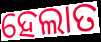
ହେଲାତ